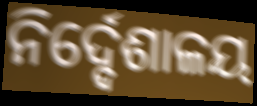
ନିର୍ଦ୍ଦେଶାଳୟ